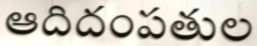
ఆదిదంపతుల